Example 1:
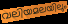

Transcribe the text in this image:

വലിയമലയിലും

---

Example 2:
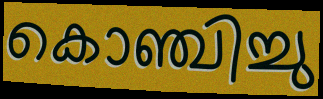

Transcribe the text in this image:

കൊഞ്ചിച്ചു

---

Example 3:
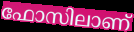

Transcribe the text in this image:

ഫോസിലാണ്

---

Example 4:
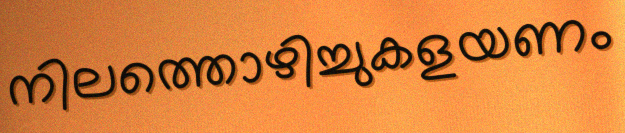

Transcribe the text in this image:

നിലത്തൊഴിച്ചുകളയണം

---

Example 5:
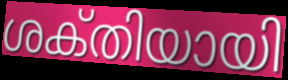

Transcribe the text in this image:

ശക്‌തിയായി